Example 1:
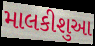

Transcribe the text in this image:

માલકીશુઆ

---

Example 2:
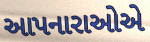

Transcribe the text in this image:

આપનારાઓએ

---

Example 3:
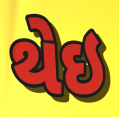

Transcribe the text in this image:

થેઇ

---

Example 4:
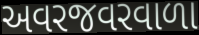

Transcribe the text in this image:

અવરજવરવાળા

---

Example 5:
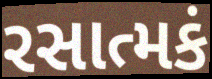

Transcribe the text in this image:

રસાત્મકં